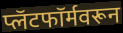
प्लॅटफॉर्मवरून